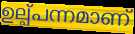
ഉല്പ്പന്നമാണ്